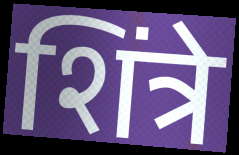
शिंत्रे